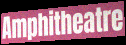
Amphitheatre